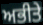
ਅਭੀਤੇ